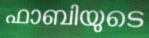
ഫാബിയുടെ